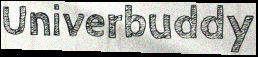
Univerbuddy